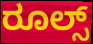
ರೂಲ್ಸ್